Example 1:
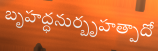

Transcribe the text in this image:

బృహద్ధనుర్బృహత్పాదో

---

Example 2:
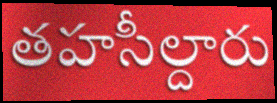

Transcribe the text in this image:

తహసీల్దారు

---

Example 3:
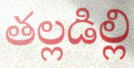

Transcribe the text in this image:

తల్లడిల్లి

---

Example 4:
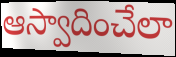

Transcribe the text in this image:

ఆస్వాదించేలా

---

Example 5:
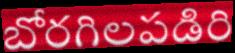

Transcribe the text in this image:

బోరగిలపడిరి